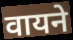
वायने